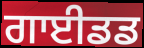
ਗਾਈਡਡ